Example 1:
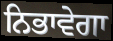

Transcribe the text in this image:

ਨਿਭਾਵੇਗਾ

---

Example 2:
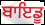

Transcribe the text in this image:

ਬਾਇਡੂ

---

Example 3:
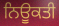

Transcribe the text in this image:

ਨਿਊਕਤੀ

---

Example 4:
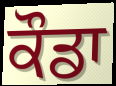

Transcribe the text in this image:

ਕੌਡਾ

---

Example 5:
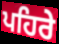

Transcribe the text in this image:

ਪਹਿਰੇ